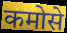
कमोसे